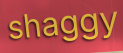
shaggy